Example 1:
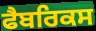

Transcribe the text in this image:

ਫੈਬਰਿਕਸ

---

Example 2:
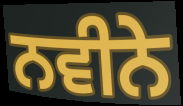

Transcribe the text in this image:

ਨਵੀਨੇ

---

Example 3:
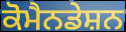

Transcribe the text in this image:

ਕੋਮੈਨਡੇਸ਼ਨ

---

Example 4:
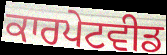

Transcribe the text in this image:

ਕਾਰਪੇਟਵੀਡ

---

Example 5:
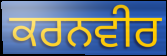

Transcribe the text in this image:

ਕਰਨਵੀਰ